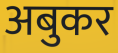
अबुकर